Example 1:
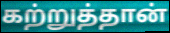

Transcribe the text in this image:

கற்றுத்தான்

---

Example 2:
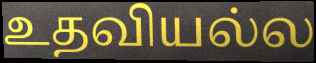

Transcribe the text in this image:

உதவியல்ல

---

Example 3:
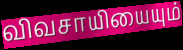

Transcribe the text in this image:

விவசாயியையும்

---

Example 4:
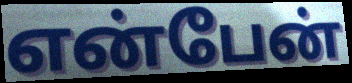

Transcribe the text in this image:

என்பேன்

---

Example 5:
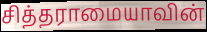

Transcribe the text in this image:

சித்தராமையாவின்